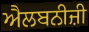
ਐਲਬਨੀਜ਼ੀ